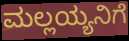
ಮಲ್ಲಯ್ಯನಿಗೆ